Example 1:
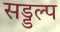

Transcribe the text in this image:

सड्डल्प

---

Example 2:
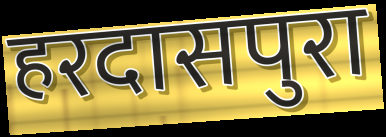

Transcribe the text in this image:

हरदासपुरा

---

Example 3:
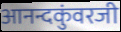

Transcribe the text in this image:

आनन्दकुंवरजी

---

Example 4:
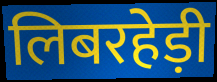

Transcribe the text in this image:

लिबरहेड़ी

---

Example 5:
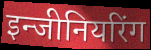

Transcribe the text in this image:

इन्जीनियरिंग